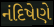
નંદિષેણે